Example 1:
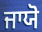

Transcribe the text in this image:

ਜਾਯੋ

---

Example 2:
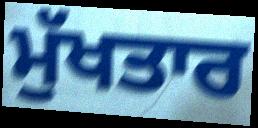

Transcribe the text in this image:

ਮੁੱਖਤਾਰ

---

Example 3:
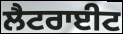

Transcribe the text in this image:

ਲੈਟਰਾਈਟ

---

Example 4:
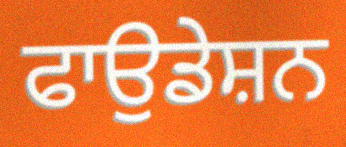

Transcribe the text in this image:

ਫਾਉਡੇਸ਼ਨ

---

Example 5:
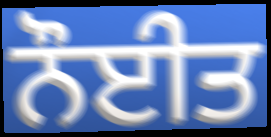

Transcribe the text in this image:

ਨੌਈਤ